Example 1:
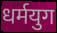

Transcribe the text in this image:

धर्मयुग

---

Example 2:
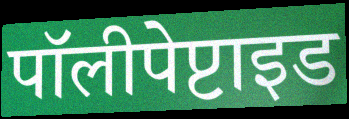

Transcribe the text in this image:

पॉलीपेप्टाइड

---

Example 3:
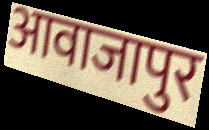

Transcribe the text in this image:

आवाजापुर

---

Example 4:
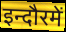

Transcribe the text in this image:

इन्दौरमें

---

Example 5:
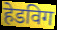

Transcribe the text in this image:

हेडविग